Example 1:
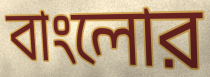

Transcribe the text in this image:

বাংলোর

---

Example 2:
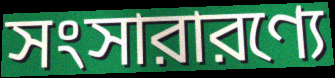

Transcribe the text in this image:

সংসারারণ্যে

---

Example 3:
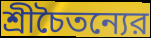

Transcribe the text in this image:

শ্রীচৈতন্যের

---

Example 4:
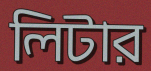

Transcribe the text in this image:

লিটার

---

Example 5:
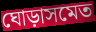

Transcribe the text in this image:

ঘোড়াসমেত